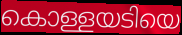
കൊള്ളയടിയെ